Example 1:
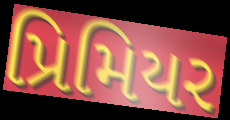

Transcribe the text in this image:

પ્રિમિયર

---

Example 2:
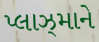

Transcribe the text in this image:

પ્લાઝ્માને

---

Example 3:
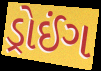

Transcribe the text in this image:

ડ્રોઈંગ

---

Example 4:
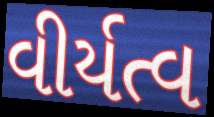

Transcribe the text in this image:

વીર્યત્વ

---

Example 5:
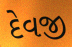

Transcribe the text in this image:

દેવજી